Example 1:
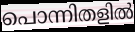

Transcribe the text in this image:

പൊന്നിതളിൽ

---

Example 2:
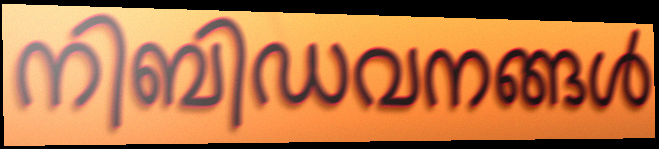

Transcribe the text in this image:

നിബിഡവനങ്ങൾ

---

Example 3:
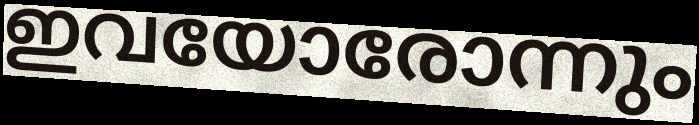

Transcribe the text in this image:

ഇവയോരോന്നും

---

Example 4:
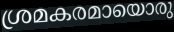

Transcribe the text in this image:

ശ്രമകരമായൊരു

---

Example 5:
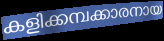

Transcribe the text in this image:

കളിക്കമ്പക്കാരനായ